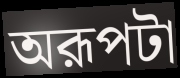
অরূপটা